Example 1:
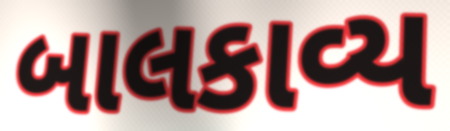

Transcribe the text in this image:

બાલકાવ્ય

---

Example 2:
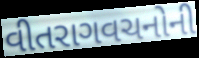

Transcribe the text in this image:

વીતરાગવચનોની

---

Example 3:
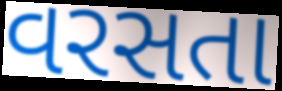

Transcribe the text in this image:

વરસતા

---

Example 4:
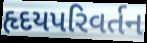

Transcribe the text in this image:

હૃદયપરિવર્તન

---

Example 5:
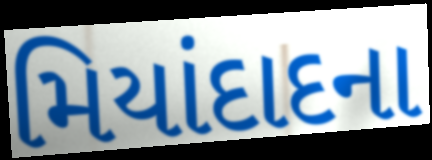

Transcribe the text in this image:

મિયાંદાદના